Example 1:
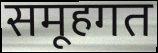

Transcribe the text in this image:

समूहगत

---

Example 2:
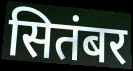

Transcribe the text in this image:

सितंबर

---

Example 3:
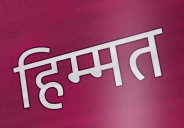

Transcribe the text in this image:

हिम्मत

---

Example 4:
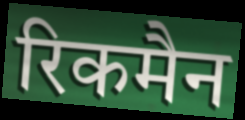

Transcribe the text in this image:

रिकमैन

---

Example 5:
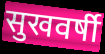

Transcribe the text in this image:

सुखवर्षी